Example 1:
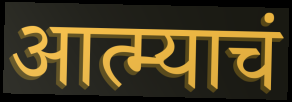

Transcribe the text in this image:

आत्म्याचं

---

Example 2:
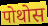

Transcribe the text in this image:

पोथोस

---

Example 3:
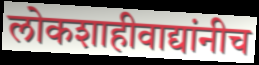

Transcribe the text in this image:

लोकशाहीवाद्यांनीच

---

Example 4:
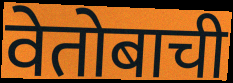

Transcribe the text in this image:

वेतोबाची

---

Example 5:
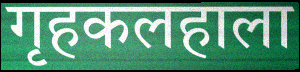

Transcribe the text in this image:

गृहकलहाला